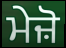
ਮੇਜ਼ੋ